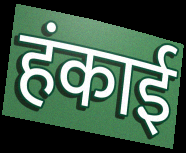
हंकाई